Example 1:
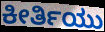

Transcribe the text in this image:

ಕೀರ್ತಿಯು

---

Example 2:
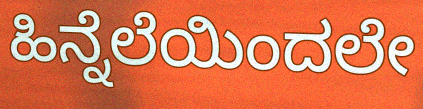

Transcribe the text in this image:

ಹಿನ್ನೆಲೆಯಿಂದಲೇ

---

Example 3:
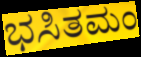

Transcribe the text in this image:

ಭಸಿತಮಂ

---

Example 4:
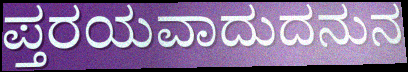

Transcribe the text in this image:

ಪ್ತರಯವಾದುದನುನ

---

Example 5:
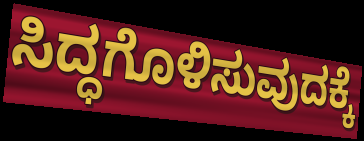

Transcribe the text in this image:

ಸಿದ್ಧಗೊಳಿಸುವುದಕ್ಕೆ